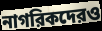
নাগরিকদেরও